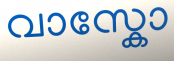
വാസ്കോ